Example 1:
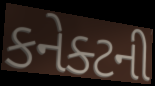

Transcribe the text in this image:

કનેક્ટની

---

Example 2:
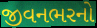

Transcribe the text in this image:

જીવનભરનો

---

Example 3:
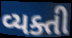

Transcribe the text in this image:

વ્યક્તી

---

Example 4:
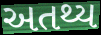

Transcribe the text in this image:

અતથ્ય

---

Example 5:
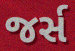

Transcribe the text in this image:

જર્સ